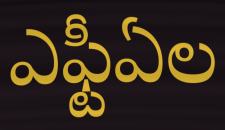
ఎఫ్టీఏల